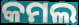
କମଲ